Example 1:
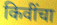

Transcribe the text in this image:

किवींचा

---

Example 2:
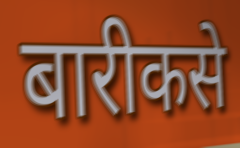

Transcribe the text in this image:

बारीकसे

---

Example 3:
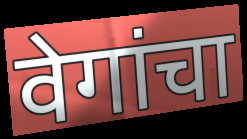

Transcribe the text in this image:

वेगांचा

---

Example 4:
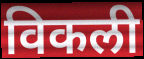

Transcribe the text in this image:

विकली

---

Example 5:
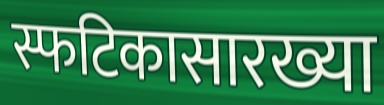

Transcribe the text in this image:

स्फटिकासारख्या